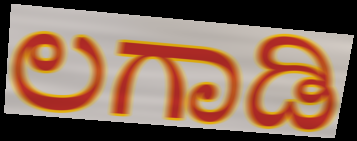
ಲಗಾಡಿ